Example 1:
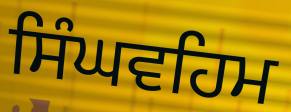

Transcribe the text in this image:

ਸਿੰਘਵਹਿਮ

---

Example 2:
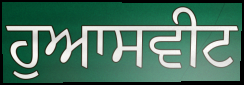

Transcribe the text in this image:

ਹੁਆਸਵੀਟ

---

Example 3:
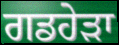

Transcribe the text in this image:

ਗਡਹੇੜਾ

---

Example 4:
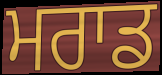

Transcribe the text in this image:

ਮਰਾਡ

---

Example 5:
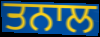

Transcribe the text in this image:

ਤਨਾਲ